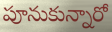
పూనుకున్నారో